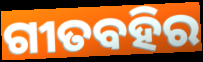
ଗୀତବହିର